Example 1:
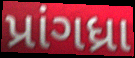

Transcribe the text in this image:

પ્રાંગધ્રા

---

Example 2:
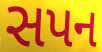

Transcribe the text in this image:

સપન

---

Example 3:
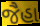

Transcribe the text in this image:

જૈહા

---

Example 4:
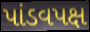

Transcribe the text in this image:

પાંડવપક્ષ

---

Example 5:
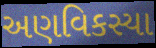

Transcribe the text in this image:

અણવિકસ્યા